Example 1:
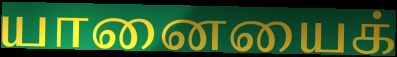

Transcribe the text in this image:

யானையைக்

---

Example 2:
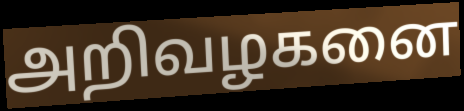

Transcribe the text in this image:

அறிவழகனை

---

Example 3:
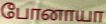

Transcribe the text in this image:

போனாயா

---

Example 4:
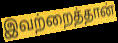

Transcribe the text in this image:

இவற்றைத்தான்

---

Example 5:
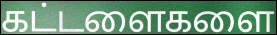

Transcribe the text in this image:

கட்டளைகளை